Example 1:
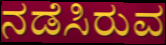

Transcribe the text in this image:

ನಡೆಸಿರುವ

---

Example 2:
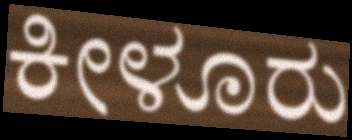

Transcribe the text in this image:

ಕೀಳೂರು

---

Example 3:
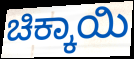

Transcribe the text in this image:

ಚಿಕ್ಕಾಯಿ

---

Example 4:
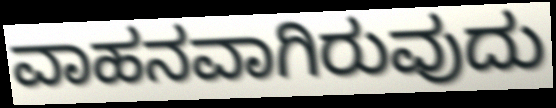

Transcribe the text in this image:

ವಾಹನವಾಗಿರುವುದು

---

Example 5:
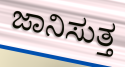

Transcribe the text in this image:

ಜಾನಿಸುತ್ತ